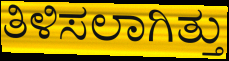
ತಿಳಿಸಲಾಗಿತ್ತು